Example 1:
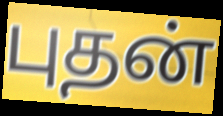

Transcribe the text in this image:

புதன்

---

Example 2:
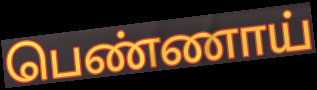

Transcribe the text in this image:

பெண்ணாய்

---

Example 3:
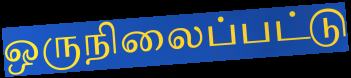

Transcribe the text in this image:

ஒருநிலைப்பட்டு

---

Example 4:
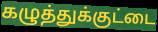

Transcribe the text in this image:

கழுத்துக்குட்டை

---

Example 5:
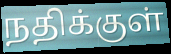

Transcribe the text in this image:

நதிக்குள்